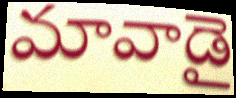
మావాడై